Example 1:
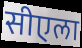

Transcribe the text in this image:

सीएला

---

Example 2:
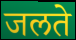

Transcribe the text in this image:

जलते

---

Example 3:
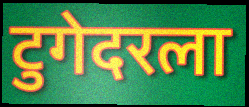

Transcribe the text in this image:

टुगेदरला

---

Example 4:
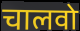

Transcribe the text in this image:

चालवो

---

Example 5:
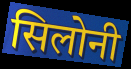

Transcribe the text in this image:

सिलोनी